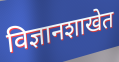
विज्ञानशाखेत